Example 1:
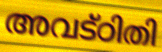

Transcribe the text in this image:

അവട്ഠിതി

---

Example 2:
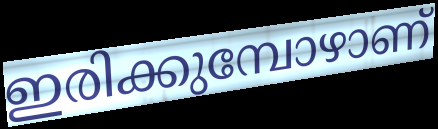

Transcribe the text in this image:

ഇരിക്കുമ്പോഴാണ്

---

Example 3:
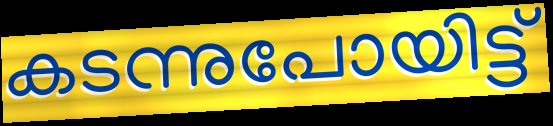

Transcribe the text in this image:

കടന്നുപോയിട്ട്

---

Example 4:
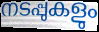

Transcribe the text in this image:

നടപ്പുകളും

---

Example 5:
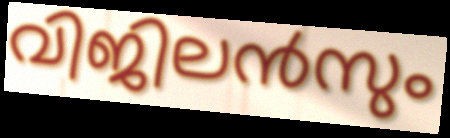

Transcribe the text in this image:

വിജിലൻസും